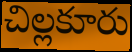
చిల్లకూరు